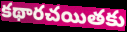
కథారచయితకు